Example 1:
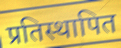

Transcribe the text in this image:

प्रतिस्थापित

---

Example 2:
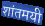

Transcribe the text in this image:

शांतमयी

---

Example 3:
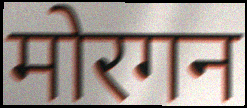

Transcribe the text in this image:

मोरगन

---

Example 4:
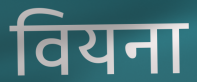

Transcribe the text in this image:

वियना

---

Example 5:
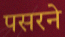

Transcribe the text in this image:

पसरने